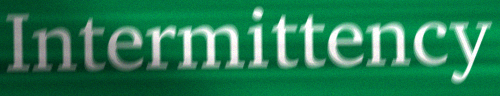
Intermittency